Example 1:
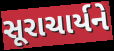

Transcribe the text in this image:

સૂરાચાર્યને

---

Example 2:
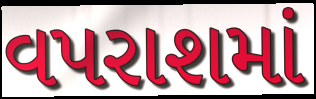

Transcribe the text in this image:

વપરાશમાં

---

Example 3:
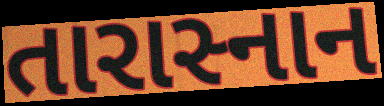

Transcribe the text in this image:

તારાસ્નાન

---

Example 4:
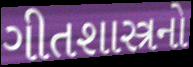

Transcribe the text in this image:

ગીતશાસ્ત્રનો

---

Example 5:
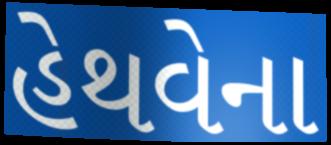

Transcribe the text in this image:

હેથવેના